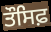
ਤੌਸਿਫ਼